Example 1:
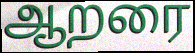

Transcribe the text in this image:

ஆறரை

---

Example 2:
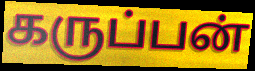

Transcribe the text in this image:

கருப்பன்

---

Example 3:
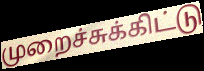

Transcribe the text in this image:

முறைச்சுக்கிட்டு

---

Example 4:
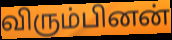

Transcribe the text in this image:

விரும்பினன்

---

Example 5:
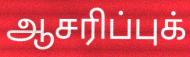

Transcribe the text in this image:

ஆசரிப்புக்